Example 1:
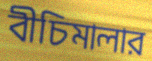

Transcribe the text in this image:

বীচিমালার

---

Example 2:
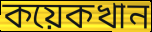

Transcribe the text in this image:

কয়েকখান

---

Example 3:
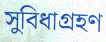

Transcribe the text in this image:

সুবিধাগ্রহণ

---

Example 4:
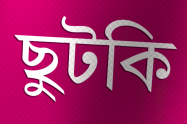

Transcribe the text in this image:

ছুটকি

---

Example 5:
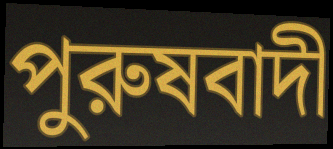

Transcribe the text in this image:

পুরুষবাদী